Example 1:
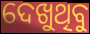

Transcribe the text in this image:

ଦେଖୁଥିବୁ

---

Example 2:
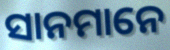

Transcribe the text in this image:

ସାନମାନେ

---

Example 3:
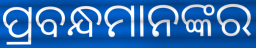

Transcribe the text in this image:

ପ୍ରବନ୍ଧମାନଙ୍କର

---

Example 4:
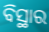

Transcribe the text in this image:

ବିସ୍ଥାର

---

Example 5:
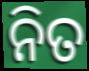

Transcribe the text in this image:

ନିତ